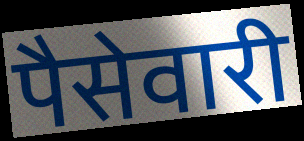
पैसेवारी